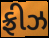
ફ્રીઝ